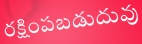
రక్షింపబడుదువు